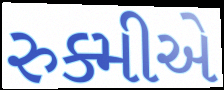
રુક્મીએ